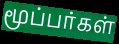
மூப்பர்கள்